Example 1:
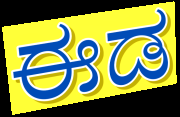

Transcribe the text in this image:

ಈಡ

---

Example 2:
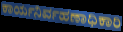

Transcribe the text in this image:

ಕಾರ್ಯನಿರ್ವಹಣಾಧಿಕಾರಿ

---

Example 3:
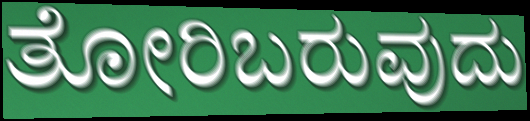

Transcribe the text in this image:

ತೋರಿಬರುವುದು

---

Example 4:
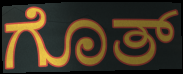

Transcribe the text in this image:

ಗೊತ್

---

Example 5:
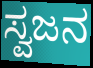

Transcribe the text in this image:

ಸ್ವಜನ